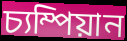
চ্যম্পিয়ান